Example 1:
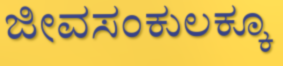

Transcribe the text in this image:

ಜೀವಸಂಕುಲಕ್ಕೂ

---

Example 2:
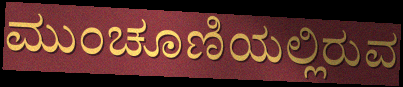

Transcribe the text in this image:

ಮುಂಚೂಣಿಯಲ್ಲಿರುವ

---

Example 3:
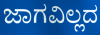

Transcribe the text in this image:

ಜಾಗವಿಲ್ಲದ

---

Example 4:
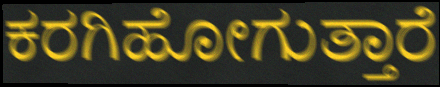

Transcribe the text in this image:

ಕರಗಿಹೋಗುತ್ತಾರೆ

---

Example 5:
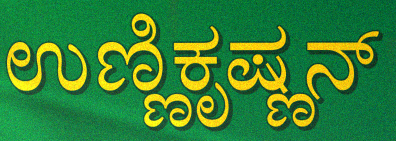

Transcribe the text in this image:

ಉಣ್ಣಿಕೃಷ್ಣನ್